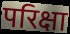
परिक्षा